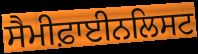
ਸੈਮੀਫ਼ਾਈਨਲਿਸਟ